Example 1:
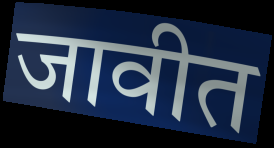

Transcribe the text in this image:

जावीत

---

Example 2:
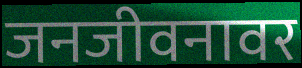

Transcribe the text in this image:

जनजीवनावर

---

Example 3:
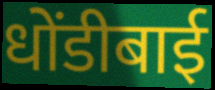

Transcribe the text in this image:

धोंडीबाई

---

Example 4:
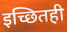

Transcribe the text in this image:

इच्छितही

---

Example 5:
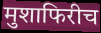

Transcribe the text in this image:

मुशाफिरीच